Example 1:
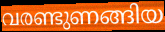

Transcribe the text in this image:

വരണ്ടുണങ്ങിയ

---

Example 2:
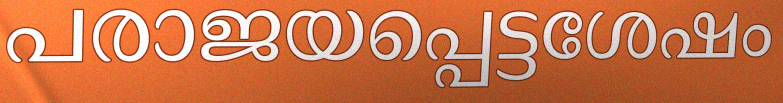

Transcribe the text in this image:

പരാജയപ്പെട്ടശേഷം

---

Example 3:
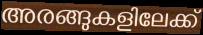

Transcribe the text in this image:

അരങ്ങുകളിലേക്ക്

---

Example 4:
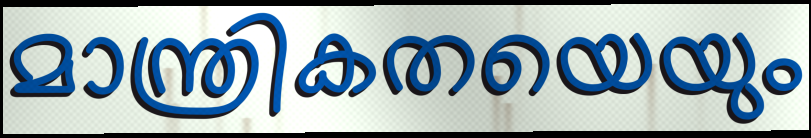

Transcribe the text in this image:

മാന്ത്രികതയെയും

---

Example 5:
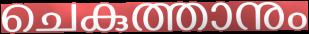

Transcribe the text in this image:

ചെകുത്താനും